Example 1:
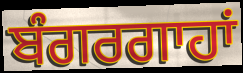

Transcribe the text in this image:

ਬੰਗਰਗਾਹਾਂ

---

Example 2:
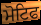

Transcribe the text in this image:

ਮੋਟਿਫ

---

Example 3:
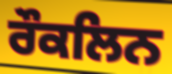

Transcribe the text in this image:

ਰੌਕਲਿਨ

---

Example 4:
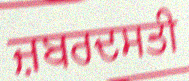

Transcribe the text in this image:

ਜ਼ਬਰਦਸਤੀ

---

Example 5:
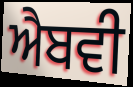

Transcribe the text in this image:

ਐਬਵੀ